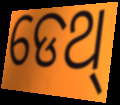
ଡେଥ୍